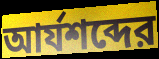
আর্যশব্দের